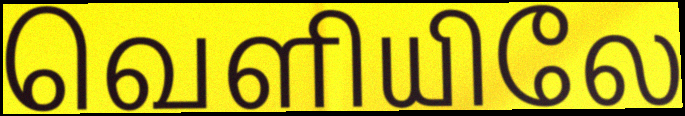
வெளியிலே